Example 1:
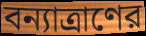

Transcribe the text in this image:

বন্যাত্রাণের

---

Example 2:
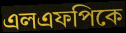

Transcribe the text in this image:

এলএফপিকে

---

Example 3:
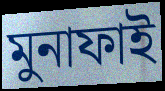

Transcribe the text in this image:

মুনাফাই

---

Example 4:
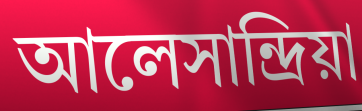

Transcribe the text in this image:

আলেসান্দ্রিয়া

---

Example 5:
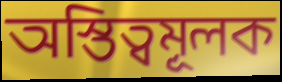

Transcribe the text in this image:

অস্তিত্বমূলক